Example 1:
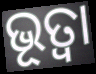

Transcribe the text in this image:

ଭୂତ୍ୱା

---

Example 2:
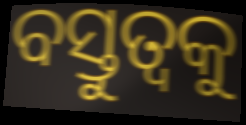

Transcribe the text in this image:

ବସ୍ତୁତ୍ଵକୁ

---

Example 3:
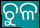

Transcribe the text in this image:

ଚୁଳ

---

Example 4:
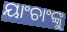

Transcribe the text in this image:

ୟାଂଚାଂଙ୍କୁ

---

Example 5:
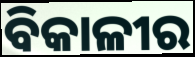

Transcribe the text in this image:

ବିକାଳୀର